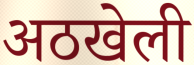
अठखेली